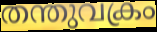
തന്തുവക്രം